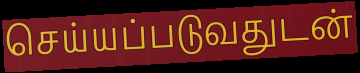
செய்யப்படுவதுடன்